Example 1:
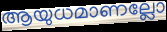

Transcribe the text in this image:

ആയുധമാണല്ലോ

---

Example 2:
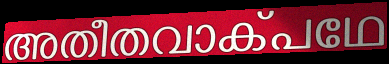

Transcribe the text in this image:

അതീതവാക്പഥേ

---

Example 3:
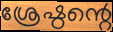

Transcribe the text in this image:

ശ്രേഷ്ഠന്റെ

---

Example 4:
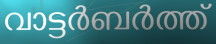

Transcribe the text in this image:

വാട്ടർബർത്ത്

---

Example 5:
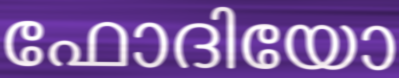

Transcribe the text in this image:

ഫോദിയോ